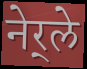
नेर्ले